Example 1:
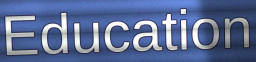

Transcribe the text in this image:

Education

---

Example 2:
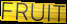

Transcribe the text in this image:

FRUIT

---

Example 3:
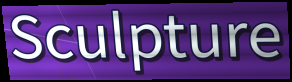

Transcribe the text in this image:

Sculpture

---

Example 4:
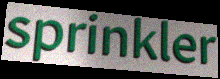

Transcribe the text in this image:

sprinkler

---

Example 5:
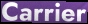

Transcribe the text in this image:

Carrier